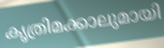
കൃത്രിമക്കാലുമായി